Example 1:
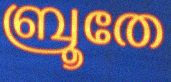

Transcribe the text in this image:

ബ്രൂതേ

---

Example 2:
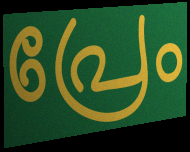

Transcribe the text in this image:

പ്രേം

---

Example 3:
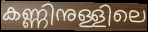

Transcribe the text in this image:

കണ്ണിനുള്ളിലെ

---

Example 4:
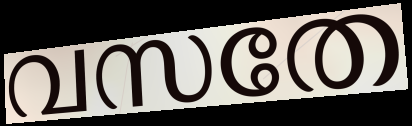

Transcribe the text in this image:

വസതേ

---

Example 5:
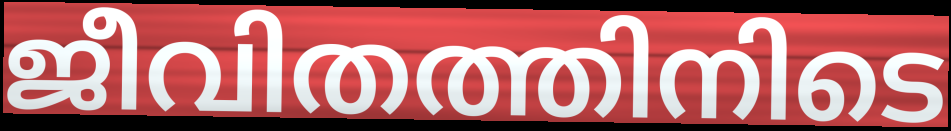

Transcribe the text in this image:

ജീവിതത്തിനിടെ